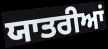
ਯਾਤਰੀਆਂ